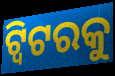
ଟ୍ୱିଟରକୁ